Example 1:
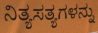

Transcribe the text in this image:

ನಿತ್ಯಸತ್ಯಗಳನ್ನು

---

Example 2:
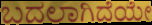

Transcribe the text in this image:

ಬದಲಾಗಿದೆಯೇ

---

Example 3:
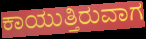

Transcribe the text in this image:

ಕಾಯುತ್ತಿರುವಾಗ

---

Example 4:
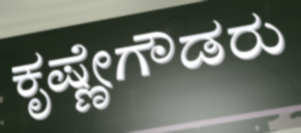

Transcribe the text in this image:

ಕೃಷ್ಣೇಗೌಡರು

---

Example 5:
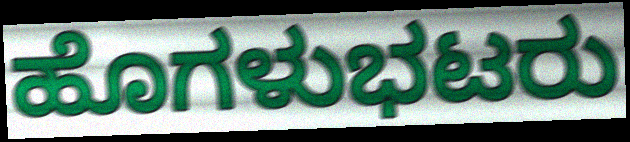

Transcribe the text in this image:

ಹೊಗಳುಭಟರು